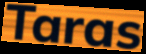
Taras